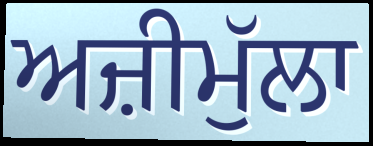
ਅਜ਼ੀਮੁੱਲਾ